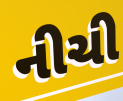
નીચી